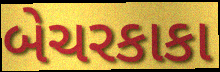
બેચરકાકા